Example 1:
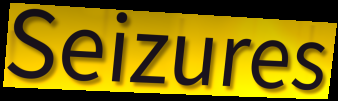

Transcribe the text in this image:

Seizures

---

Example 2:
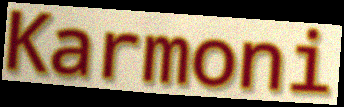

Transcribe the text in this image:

Karmoni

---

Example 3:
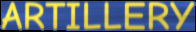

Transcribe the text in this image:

ARTILLERY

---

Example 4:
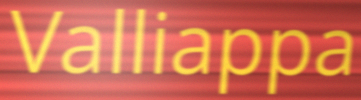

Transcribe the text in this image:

Valliappa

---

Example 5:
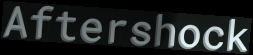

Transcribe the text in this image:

Aftershock